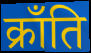
क्राँति